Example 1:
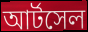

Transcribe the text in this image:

আর্টসেল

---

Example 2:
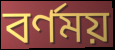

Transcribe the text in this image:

বর্ণময়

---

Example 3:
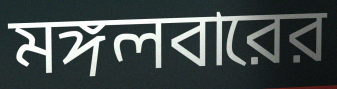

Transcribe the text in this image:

মঙ্গলবারের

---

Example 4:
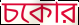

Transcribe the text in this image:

চকোর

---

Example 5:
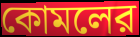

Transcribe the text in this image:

কোমলের